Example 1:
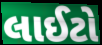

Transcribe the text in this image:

લાઈટો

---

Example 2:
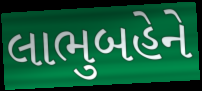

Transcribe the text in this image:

લાભુબહેને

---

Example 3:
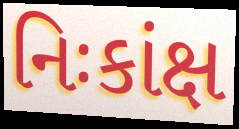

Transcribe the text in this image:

નિઃકાંક્ષ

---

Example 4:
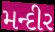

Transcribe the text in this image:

મન્દીર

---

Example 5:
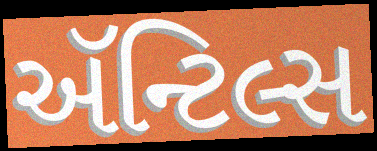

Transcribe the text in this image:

ઍન્ટિલ્સ